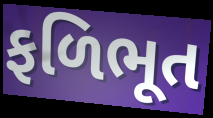
ફળિભૂત